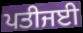
ਪਤੀਜਈ